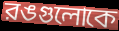
রঙগুলোকে